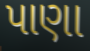
પાણા